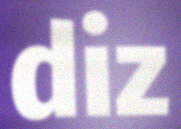
diz